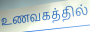
உணவகத்தில்